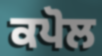
ਕਪੋਲ